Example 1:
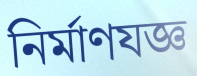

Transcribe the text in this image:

নির্মাণযজ্ঞ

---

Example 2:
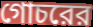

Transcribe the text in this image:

গোচরের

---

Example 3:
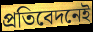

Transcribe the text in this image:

প্রতিবেদনেই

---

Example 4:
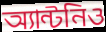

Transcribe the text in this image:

অ্যান্টনিও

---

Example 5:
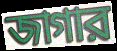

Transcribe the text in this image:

জাগার